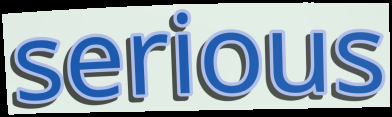
serious